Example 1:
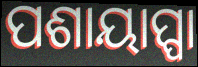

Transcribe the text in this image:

ପଶାୟାପ୍ପା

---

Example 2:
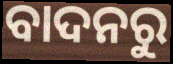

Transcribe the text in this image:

ବାଦନରୁ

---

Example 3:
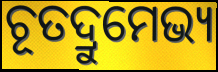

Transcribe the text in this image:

ଚୂତଦ୍ରୁମେଭ୍ୟ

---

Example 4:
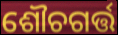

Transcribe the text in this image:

ଶୌଚଗର୍ତ୍ତ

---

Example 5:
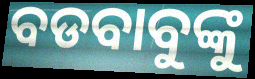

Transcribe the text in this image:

ବଡବାବୁଙ୍କୁ